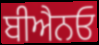
ਬੀਐਨਓ